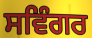
ਸਵਿੰਗਰ